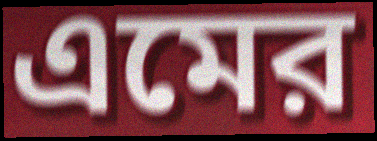
এমের